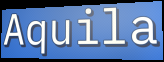
Aquila